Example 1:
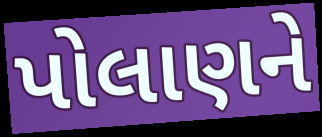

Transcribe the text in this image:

પોલાણને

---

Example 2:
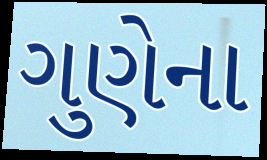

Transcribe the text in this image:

ગુણેના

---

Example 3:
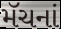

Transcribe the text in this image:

મૅચનાં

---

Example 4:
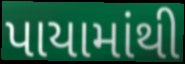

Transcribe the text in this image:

પાયામાંથી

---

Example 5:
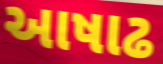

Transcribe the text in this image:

આષાઢ